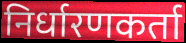
निर्धारणकर्ता